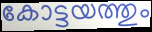
കോട്ടയത്തും